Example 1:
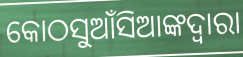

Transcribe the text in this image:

କୋଠସୁଆଁସିଆଙ୍କଦ୍ବାରା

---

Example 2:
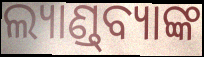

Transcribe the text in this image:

ଲ୍ୟାଣ୍ଡ୍‌ବ୍ୟାଙ୍କ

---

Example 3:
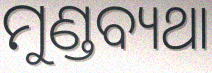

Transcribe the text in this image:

ମୁଣ୍ଡବ୍ୟଥା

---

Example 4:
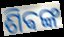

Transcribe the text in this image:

ଶିଵଙ୍କ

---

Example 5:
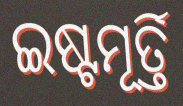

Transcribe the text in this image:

ଇଷ୍ଟମୂର୍ତ୍ତି